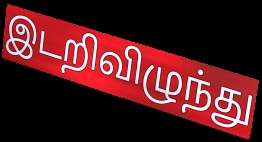
இடறிவிழுந்து